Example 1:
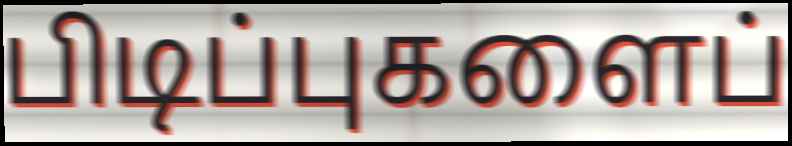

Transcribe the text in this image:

பிடிப்புகளைப்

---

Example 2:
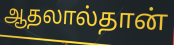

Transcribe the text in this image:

ஆதலால்தான்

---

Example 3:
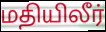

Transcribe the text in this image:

மதியிலீர்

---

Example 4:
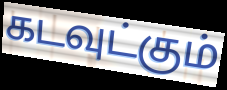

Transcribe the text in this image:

கடவுட்கும்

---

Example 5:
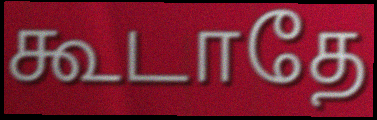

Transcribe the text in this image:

கூடாதே